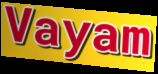
Vayam